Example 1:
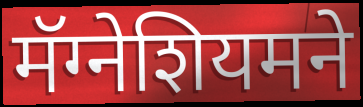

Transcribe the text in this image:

मॅग्नेशियमने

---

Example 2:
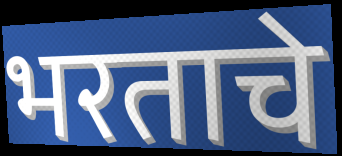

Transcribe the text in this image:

भरताचे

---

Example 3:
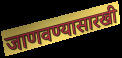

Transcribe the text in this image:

जाणवण्यासारखी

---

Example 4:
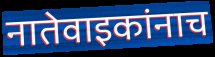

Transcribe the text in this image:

नातेवाइकांनाच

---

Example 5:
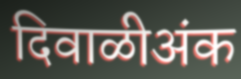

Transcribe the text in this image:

दिवाळीअंक